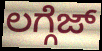
ಲಗ್ಗೆಜ್